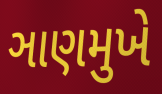
ઞાણમુખે